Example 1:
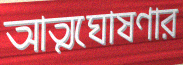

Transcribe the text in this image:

আত্মঘোষণার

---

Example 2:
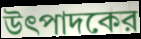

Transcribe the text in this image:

উৎপাদকের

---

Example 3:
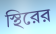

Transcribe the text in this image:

স্থিরের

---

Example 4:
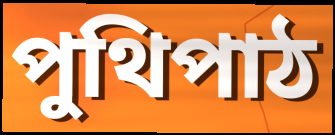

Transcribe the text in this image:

পুথিপাঠ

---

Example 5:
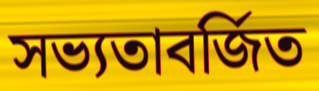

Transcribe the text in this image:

সভ্যতাবর্জিত